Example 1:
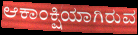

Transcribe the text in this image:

ಆಕಾಂಕ್ಷಿಯಾಗಿರುವ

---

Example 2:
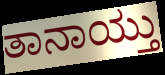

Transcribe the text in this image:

ತಾನಾಯ್ತು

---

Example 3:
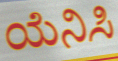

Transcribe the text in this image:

ಯೆನಿಸಿ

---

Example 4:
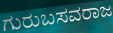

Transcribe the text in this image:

ಗುರುಬಸವರಾಜ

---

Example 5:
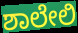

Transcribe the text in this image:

ಶಾಲೇಲಿ